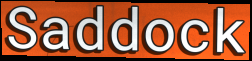
Saddock